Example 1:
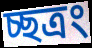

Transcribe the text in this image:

চ্ছত্রং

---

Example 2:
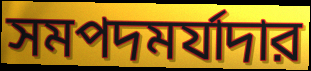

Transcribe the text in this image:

সমপদমর্যাদার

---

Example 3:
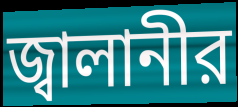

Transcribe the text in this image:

জ্বালানীর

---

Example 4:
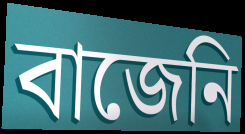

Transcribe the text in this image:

বাজেনি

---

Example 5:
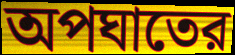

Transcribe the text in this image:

অপঘাতের